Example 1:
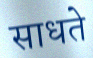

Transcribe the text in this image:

साधते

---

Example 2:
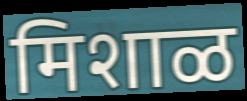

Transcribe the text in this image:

मिशाळ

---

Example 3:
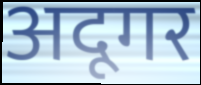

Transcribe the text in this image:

अदूगर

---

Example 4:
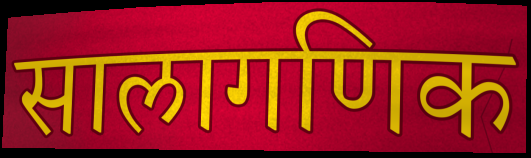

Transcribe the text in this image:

सालागणिक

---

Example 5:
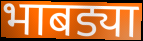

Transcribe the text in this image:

भाबड्या